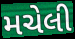
મચેલી